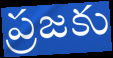
ప్రజకు